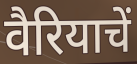
वैरियाचें